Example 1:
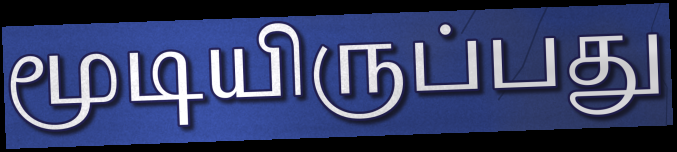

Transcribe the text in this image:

மூடியிருப்பது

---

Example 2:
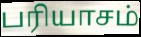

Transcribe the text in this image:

பரியாசம்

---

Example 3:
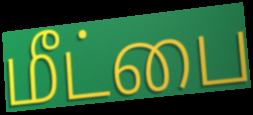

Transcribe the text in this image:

மீட்பை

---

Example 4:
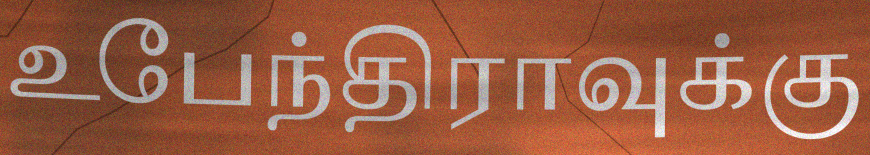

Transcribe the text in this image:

உபேந்திராவுக்கு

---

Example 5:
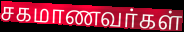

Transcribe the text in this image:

சகமாணவர்கள்